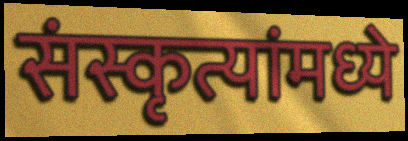
संस्कृत्यांमध्ये